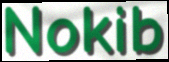
Nokib